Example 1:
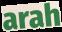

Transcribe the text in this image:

arah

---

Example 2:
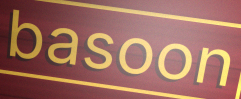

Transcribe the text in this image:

basoon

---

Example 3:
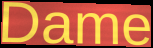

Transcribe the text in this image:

Dame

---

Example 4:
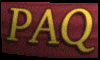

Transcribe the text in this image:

PAQ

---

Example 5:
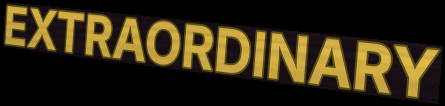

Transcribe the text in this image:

EXTRAORDINARY